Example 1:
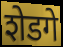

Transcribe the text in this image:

शेडगे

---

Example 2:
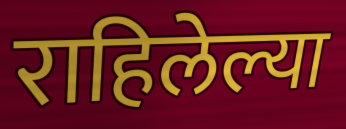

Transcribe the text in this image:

राहिलेल्या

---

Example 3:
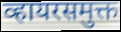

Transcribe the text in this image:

व्हायरसमुक्त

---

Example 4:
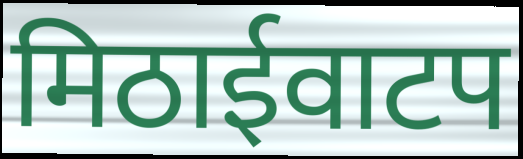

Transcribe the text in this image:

मिठाईवाटप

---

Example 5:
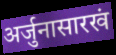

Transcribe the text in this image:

अर्जुनासारखं